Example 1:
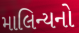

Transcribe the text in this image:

માલિન્યનો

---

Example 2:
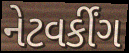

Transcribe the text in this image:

નેટવર્કીંગ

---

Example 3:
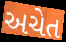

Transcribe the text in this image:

અચેત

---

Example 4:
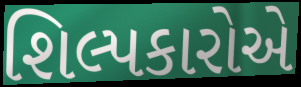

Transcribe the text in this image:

શિલ્પકારોએ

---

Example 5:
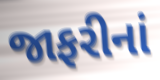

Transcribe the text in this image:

જાફરીનાં